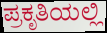
ಪ್ರಕೃತಿಯಲ್ಲಿ